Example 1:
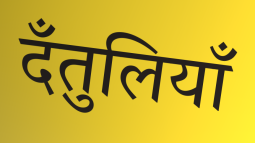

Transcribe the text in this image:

दँतुलियाँ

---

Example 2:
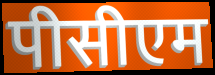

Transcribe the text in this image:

पीसीएम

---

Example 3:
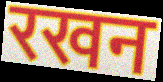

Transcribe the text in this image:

रखन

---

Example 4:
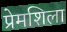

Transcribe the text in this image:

प्रेमशिला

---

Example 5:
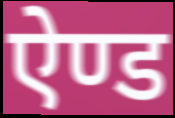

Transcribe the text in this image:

ऐण्ड